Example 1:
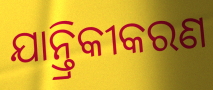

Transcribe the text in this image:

ଯାନ୍ତ୍ରିକୀକରଣ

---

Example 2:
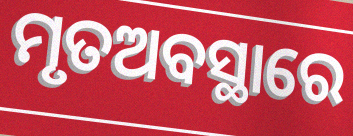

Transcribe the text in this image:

ମୃତଅବସ୍ଥାରେ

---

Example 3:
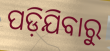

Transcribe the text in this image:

ପଡ଼ିଯିବାରୁ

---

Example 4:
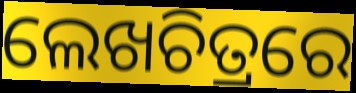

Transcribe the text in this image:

ଲେଖଚିତ୍ରରେ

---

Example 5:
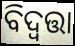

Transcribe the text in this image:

ବିଦ୍ୱତ୍ତା